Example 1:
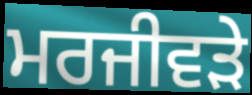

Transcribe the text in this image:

ਮਰਜੀਵੜੇ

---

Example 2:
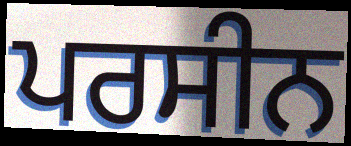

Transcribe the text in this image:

ਪਰਸੀਨ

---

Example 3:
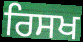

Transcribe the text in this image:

ਰਿਸਖ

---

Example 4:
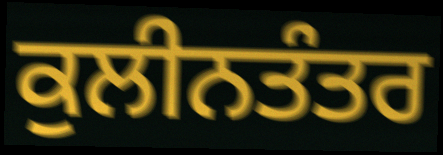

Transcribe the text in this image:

ਕੁਲੀਨਤੰਤਰ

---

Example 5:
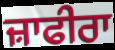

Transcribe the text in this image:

ਜ਼ਾਫੀਰਾ